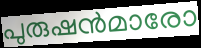
പുരുഷൻമാരോ